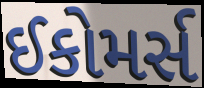
ઈકોમર્સ